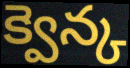
క్వెన్క